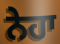
ਨੇਹਾ